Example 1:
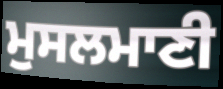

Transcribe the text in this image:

ਮੁਸਲਮਾਣੀ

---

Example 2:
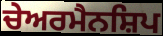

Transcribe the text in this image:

ਚੇਅਰਮੈਨਸ਼ਿਪ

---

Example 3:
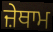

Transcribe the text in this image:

ਜ਼ੇਥਾਮ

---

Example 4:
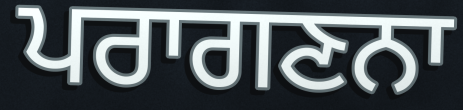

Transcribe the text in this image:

ਪਰਾਗਣਨਾ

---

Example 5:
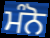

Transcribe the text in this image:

ਮੰਨੋ